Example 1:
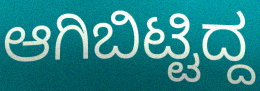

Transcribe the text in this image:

ಆಗಿಬಿಟ್ಟಿದ್ದ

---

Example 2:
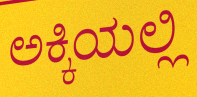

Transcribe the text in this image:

ಅಕ್ಕಿಯಲ್ಲಿ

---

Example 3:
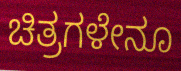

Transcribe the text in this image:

ಚಿತ್ರಗಳೇನೂ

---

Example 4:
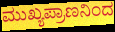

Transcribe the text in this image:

ಮುಖ್ಯಪ್ರಾಣನಿಂದ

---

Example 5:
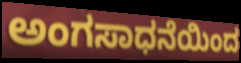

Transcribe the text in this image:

ಅಂಗಸಾಧನೆಯಿಂದ